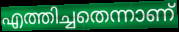
എത്തിച്ചതെന്നാണ്